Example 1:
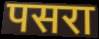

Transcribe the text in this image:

पसरा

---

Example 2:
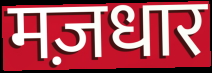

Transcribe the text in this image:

मज़धार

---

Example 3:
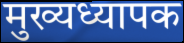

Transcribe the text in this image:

मुख्यध्यापक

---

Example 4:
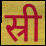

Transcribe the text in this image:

स्री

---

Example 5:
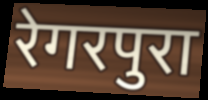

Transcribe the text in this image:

रेगरपुरा